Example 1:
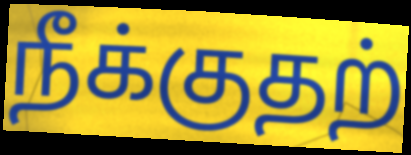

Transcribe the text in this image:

நீக்குதற்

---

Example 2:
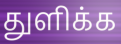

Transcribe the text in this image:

துளிக்க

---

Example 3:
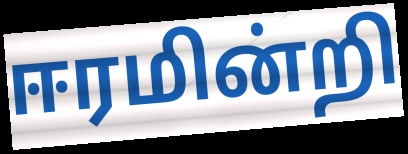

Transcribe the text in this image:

ஈரமின்றி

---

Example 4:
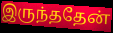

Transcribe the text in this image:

இருந்ததேன்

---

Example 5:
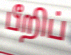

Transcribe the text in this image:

பீறிப்